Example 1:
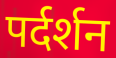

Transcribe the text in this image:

पर्दर्शन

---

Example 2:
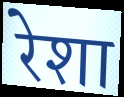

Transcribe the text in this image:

रेशा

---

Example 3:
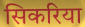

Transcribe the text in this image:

सिकरिया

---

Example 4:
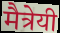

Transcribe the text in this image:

मैत्रेयी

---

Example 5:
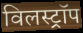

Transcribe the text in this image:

विलस्ट्रॉप